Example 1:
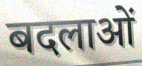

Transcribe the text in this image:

बदलाओं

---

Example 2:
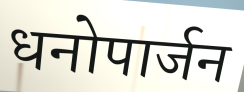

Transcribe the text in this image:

धनोपार्जन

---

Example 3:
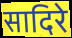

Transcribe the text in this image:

सादिरे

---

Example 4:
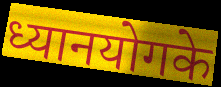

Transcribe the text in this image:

ध्यानयोगके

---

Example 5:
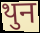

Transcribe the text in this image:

थुन